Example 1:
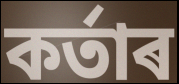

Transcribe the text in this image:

কৰ্তাৰ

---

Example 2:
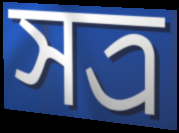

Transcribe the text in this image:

সত্ৰ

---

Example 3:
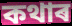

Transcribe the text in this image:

কথাৰ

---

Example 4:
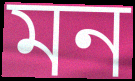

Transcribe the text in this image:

মন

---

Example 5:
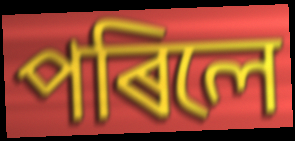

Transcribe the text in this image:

পৰিলে